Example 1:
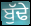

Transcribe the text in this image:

ਬੁੱਢੇ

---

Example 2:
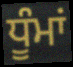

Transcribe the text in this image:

ਧੂੰਮਾਂ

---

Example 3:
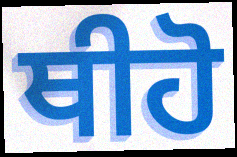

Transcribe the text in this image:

ਥੀਹੋ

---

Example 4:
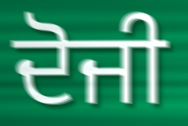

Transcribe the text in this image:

ਦੋਜੀ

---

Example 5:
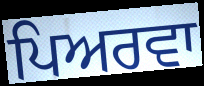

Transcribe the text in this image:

ਪਿਅਰਵਾ